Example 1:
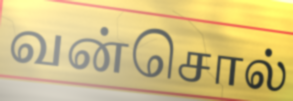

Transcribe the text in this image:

வன்சொல்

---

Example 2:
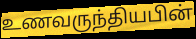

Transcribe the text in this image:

உணவருந்தியபின்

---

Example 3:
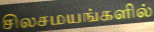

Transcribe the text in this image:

சிலசமயங்களில்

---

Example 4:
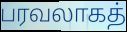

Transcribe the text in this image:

பரவலாகத்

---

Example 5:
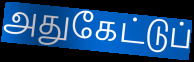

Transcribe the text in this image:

அதுகேட்டுப்